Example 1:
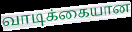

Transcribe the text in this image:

வாடிக்கையான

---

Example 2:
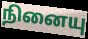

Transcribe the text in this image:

நினையு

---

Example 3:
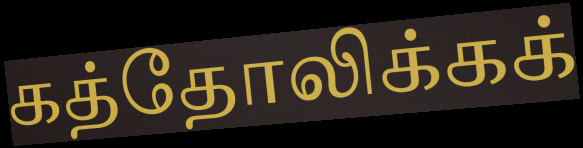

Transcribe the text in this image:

கத்தோலிக்கக்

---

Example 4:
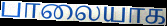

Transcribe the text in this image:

பாலையாக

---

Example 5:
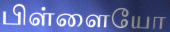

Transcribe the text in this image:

பிள்ளையோ